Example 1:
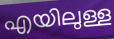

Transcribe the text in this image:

എയിലുള്ള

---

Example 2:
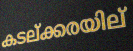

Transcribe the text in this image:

കടല്ക്കരയില്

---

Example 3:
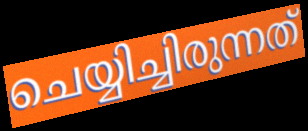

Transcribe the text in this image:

ചെയ്യിച്ചിരുന്നത്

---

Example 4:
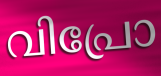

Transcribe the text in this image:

വിപ്രോ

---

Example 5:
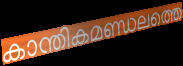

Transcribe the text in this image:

കാന്തികമണ്ഡലത്തെ